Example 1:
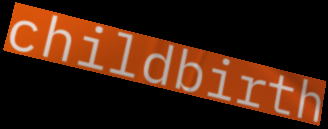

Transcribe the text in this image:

childbirth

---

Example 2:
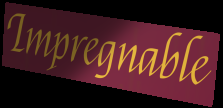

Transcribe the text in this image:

Impregnable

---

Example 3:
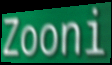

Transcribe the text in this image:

Zooni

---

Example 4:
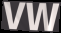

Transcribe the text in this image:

vw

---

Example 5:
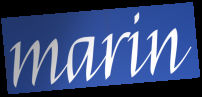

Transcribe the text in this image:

marin